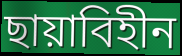
ছায়াবিহীন